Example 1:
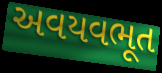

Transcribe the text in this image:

અવયવભૂત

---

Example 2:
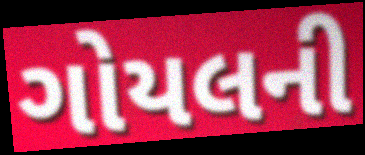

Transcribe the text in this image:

ગોયલની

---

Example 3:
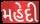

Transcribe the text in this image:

મહેદી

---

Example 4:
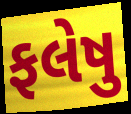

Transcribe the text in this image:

ફલેષુ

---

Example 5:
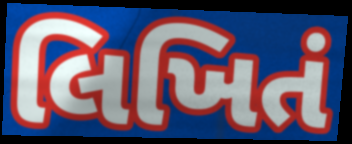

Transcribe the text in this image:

લિખિતં